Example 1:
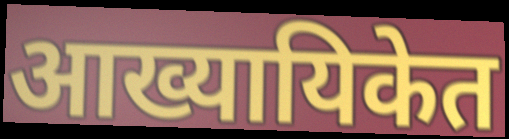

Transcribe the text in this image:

आख्यायिकेत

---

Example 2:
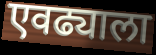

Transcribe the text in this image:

एवढ्याला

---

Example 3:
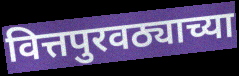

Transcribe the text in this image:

वित्तपुरवठ्याच्या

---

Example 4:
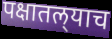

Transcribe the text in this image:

पक्षातल्याच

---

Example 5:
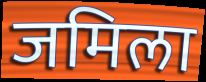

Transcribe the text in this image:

जमिला